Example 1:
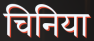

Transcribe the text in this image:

चिनिया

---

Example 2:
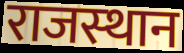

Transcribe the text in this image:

राजस्‍थान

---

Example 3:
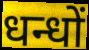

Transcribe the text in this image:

धन्धों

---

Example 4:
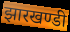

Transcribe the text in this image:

झारखण्डी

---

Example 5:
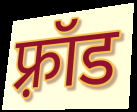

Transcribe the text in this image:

फ़्रॉड